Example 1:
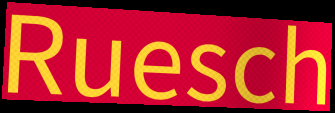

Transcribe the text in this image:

Ruesch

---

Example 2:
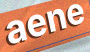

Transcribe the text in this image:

aene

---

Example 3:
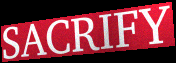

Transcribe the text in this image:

SACRIFY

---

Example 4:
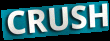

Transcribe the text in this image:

CRUSH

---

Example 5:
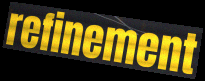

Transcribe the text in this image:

refinement